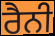
ਰੈਨੀ